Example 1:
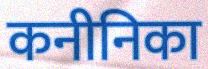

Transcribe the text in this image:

कनीनिका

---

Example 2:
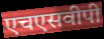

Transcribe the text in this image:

एचएसवीपी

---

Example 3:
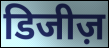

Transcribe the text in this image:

डिजीज़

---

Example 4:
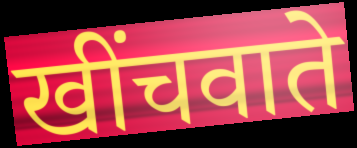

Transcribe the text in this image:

खींचवाते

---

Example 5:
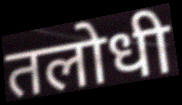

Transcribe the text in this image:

तलोधी